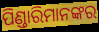
ପିଣ୍ଡାରିମାନଙ୍କର